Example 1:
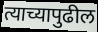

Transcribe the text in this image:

त्याच्यापुढील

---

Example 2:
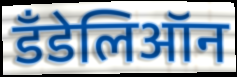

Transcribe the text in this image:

डँडेलिऑन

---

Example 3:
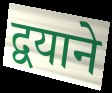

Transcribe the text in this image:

द्वयाने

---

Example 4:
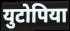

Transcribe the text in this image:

युटोपिया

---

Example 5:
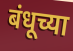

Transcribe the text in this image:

बंधूच्या